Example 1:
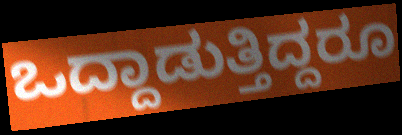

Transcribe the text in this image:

ಒದ್ದಾಡುತ್ತಿದ್ದರೂ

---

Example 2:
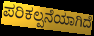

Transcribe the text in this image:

ಪರಿಕಲ್ಪನೆಯಾಗಿದೆ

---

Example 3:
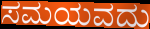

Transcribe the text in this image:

ಸಮಯವದು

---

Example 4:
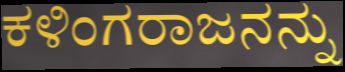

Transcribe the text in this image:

ಕಳಿಂಗರಾಜನನ್ನು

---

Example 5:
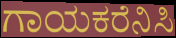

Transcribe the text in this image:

ಗಾಯಕರೆನಿಸಿ